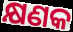
କ୍ଷଣକ